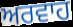
ਅਰਵਾਹ